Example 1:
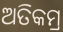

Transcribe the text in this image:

ଅତିକମ୍ର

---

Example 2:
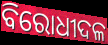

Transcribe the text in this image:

ବିରୋଧୀଦଳ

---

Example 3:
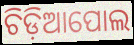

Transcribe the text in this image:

ଚିଡ଼ିଆପୋଲ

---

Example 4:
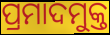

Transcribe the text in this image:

ପ୍ରମାଦମୁକ୍ତ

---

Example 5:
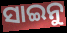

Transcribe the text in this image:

ସାଇନୁ